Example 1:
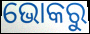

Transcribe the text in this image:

ଭୋକରୁ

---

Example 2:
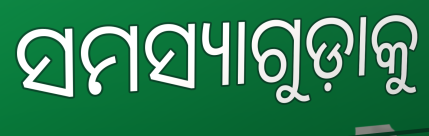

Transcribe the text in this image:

ସମସ୍ୟାଗୁଡ଼ାକୁ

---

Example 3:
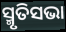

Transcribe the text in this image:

ସ୍ମୃତିସଭା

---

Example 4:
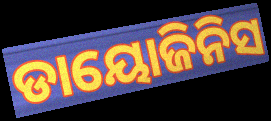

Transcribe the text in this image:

ଡାୟୋଜିନିସ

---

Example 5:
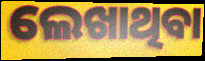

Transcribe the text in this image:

ଲେଖାଥିବା